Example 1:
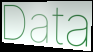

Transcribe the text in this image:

Data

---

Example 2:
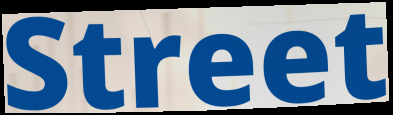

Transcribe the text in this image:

Street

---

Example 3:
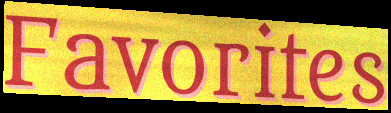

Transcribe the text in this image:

Favorites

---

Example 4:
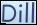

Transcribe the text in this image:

Dill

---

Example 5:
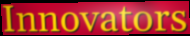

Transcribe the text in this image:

Innovators